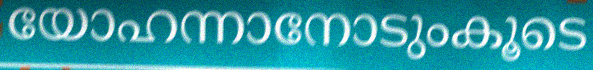
യോഹന്നാനോടുംകൂടെ